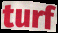
turf